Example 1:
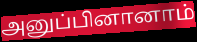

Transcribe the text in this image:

அனுப்பினானாம்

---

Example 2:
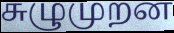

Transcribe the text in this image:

சுழுமுறன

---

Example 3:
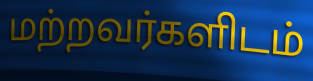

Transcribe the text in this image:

மற்றவர்களிடம்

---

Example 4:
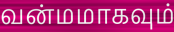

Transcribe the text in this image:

வன்மமாகவும்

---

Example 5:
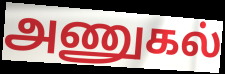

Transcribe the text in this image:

அணுகல்